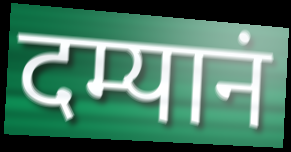
दम्यानं